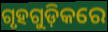
ଗୃହଗୁଡ଼ିକରେ